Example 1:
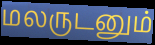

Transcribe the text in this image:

மலருடனும்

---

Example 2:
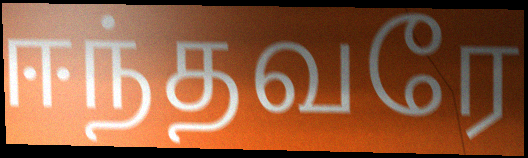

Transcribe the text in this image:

ஈந்தவரே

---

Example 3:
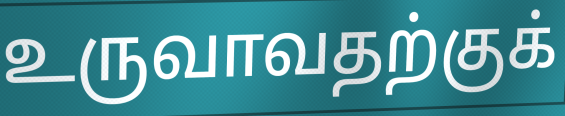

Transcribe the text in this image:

உருவாவதற்குக்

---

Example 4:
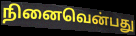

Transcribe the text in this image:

நினைவென்பது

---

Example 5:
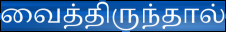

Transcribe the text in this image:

வைத்திருந்தால்